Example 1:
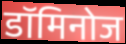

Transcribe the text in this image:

डॉमिनोज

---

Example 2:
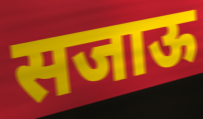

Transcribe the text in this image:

सजाऊ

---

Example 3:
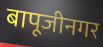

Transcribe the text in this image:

बापूजीनगर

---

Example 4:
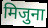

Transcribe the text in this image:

मिजुना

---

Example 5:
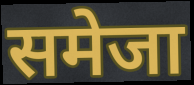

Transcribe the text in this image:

समेजा